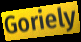
Goriely